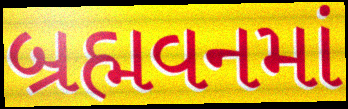
બ્રહ્મવનમાં